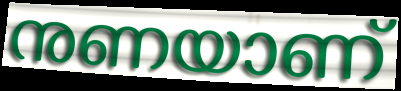
നുണയാണ്